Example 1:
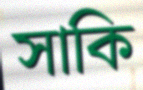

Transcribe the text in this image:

সাকি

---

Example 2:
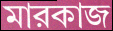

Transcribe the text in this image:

মারকাজ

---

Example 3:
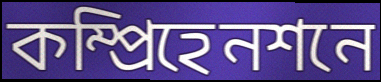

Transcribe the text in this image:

কম্প্রিহেনশনে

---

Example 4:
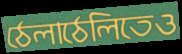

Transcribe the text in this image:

ঠেলাঠেলিতেও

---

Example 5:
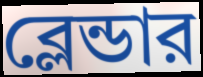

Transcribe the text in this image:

ব্লেন্ডার